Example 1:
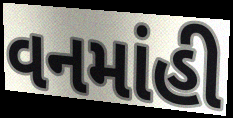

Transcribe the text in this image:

વનમાંહી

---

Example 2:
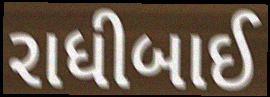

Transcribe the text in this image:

રાધીબાઈ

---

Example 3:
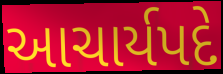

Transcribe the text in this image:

આચાર્યપદે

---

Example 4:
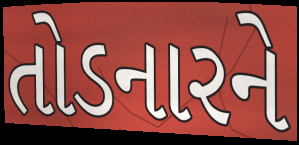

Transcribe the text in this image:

તોડનારને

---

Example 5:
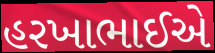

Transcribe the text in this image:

હરખાભાઈએ